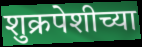
शुक्रपेशीच्या